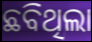
ଛବିଥିଲା